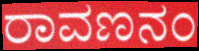
ರಾವಣನಂ